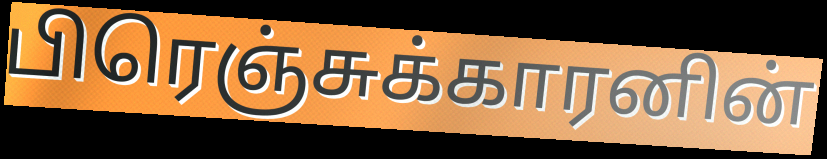
பிரெஞ்சுக்காரனின்